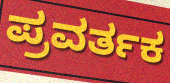
ಪ್ರವರ್ತಕ